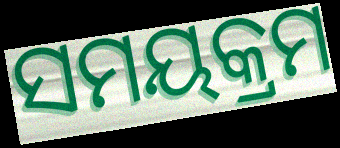
ସମୟକ୍ରମ